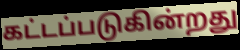
கட்டப்படுகின்றது